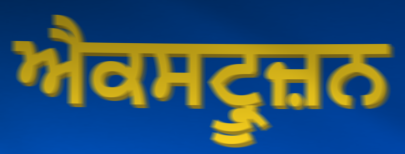
ਐਕਸਟ੍ਰੂਜ਼ਨ